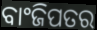
ବାଂଜିପତର